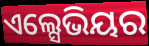
ଏଲ୍ସେଭିୟର